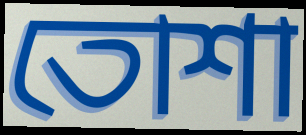
তোশা